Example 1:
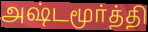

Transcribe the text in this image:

அஷ்டமூர்த்தி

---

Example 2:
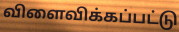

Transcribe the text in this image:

விளைவிக்கப்பட்டு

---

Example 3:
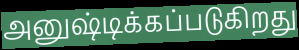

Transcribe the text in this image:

அனுஷ்டிக்கப்படுகிறது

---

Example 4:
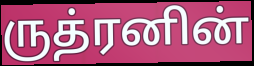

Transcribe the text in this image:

ருத்ரனின்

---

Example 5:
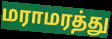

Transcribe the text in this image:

மராமரத்து